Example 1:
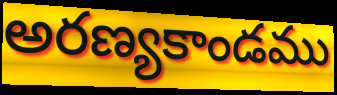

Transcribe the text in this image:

అరణ్యకాండము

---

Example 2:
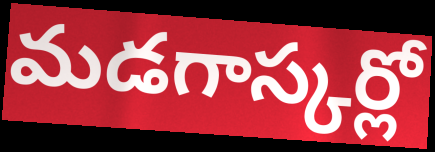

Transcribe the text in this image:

మడగాస్కర్లో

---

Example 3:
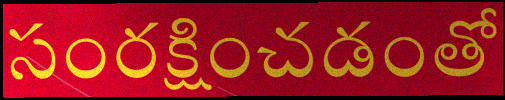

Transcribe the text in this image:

సంరక్షించడంతో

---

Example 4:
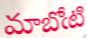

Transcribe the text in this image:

మాబోఁటి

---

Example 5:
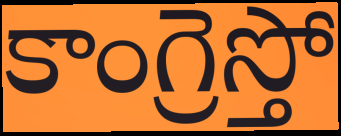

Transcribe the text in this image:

కాంగ్రెస్తో